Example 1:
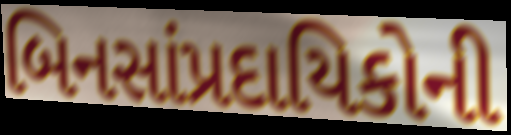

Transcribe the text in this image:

બિનસાંપ્રદાયિકોની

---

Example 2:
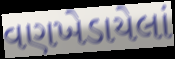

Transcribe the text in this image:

વણખેડાયેલાં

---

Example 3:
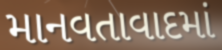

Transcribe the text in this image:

માનવતાવાદમાં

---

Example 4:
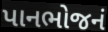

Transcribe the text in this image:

પાનભોજનં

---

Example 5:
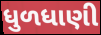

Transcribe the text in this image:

ધુળધાણી